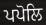
ਪਪੋਲਿ